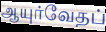
ஆயுர்வேதப்